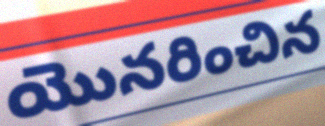
యొనరించిన